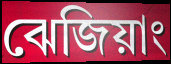
ঝেজিয়াং